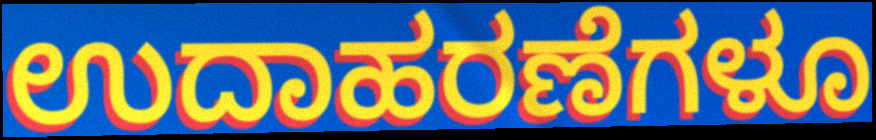
ಉದಾಹರಣೆಗಳೂ